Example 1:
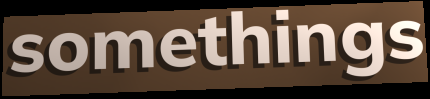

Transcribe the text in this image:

somethings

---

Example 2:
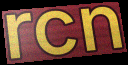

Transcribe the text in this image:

rcn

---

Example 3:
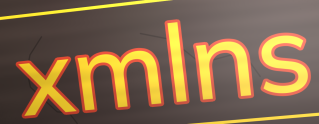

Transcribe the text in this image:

xmlns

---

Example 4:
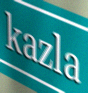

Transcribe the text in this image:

kazla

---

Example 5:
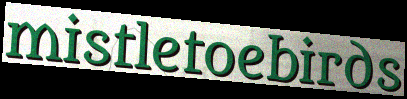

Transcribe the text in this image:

mistletoebirds